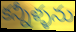
కన్నీళ్ళను